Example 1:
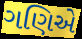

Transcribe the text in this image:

ગણિએ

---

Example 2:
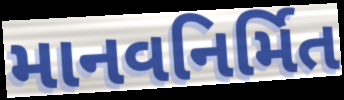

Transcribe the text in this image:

માનવનિર્મિત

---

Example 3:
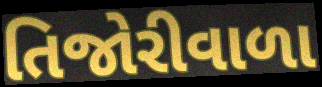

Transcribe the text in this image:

તિજોરીવાળા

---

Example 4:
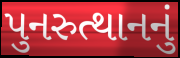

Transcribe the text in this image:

પુનરુત્થાનનું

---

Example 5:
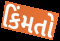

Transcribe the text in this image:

કિંમતો